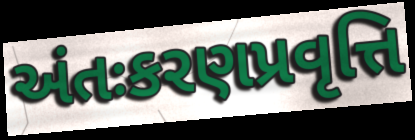
અંતઃકરણપ્રવૃત્તિ